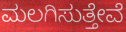
ಮಲಗಿಸುತ್ತೇವೆ